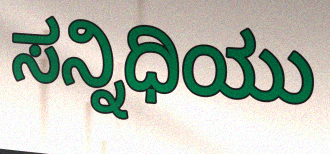
ಸನ್ನಿಧಿಯು